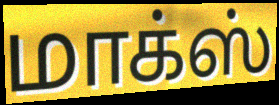
மாக்ஸ்